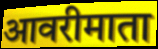
आवरीमाता